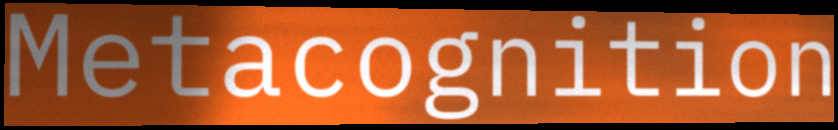
Metacognition